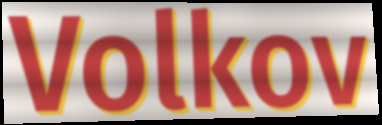
Volkov